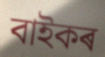
বাইকৰ